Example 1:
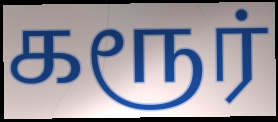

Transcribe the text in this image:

கரூர்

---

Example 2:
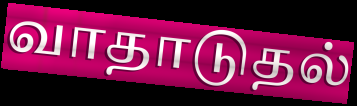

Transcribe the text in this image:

வாதாடுதல்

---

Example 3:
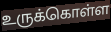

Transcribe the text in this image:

உருக்கொள்ள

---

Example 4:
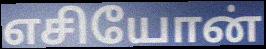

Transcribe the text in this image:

எசியோன்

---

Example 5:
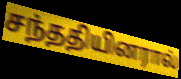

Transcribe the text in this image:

சந்ததியினரால்